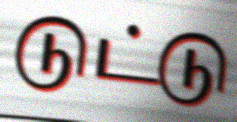
டுட்டு